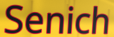
Senich